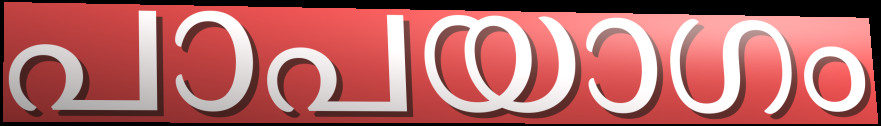
പാപയാഗം